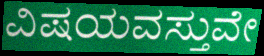
ವಿಷಯವಸ್ತುವೇ